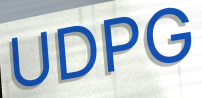
UDPG